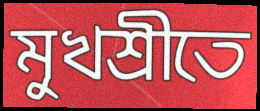
মুখশ্রীতে